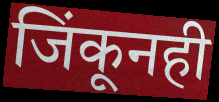
जिंकूनही